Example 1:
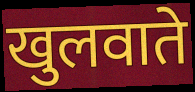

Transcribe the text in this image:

खुलवाते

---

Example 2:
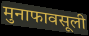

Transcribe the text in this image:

मुनाफावसूली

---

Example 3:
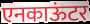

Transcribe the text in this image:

एनकाऊंटर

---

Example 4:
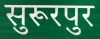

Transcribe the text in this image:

सुरूरपुर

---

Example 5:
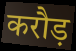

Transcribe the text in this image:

करौड़